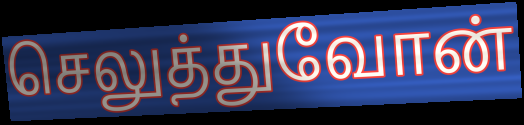
செலுத்துவோன்